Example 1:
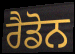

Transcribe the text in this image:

ਰੈਡੋਨ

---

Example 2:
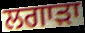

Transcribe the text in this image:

ਲਗਾੜਾ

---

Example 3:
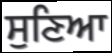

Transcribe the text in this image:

ਸੁਣਿਆ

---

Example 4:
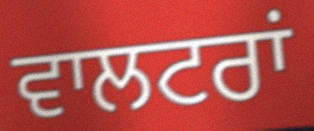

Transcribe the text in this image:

ਵਾਲਟਰਾਂ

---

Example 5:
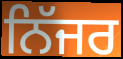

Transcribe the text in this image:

ਨਿੱਜਰ